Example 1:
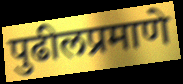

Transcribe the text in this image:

पुढीलप्रमाणे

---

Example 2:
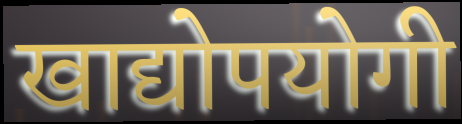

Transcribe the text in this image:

खाद्योपयोगी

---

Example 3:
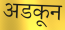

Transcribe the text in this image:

अडकून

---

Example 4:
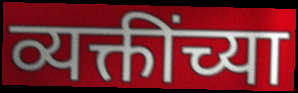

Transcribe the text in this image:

व्यक्तींच्या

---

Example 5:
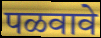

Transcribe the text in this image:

पळवावे